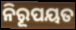
ନିରୂପୟତ